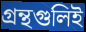
গ্রন্থগুলিই